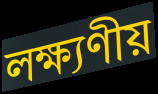
লক্ষ্যণীয়